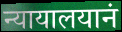
न्यायालयानं